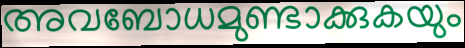
അവബോധമുണ്ടാക്കുകയും